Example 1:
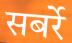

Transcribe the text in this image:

सबर्रे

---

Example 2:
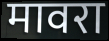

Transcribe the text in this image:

मावरा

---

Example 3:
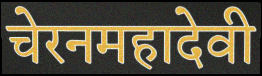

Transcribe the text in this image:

चेरनमहादेवी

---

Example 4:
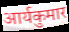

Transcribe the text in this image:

आर्यकुमार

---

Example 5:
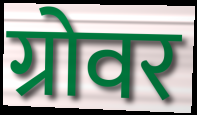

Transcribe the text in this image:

ग्रोवर